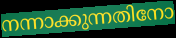
നന്നാക്കുന്നതിനോ